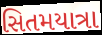
સિતમયાત્રા